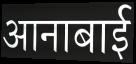
आनाबाई